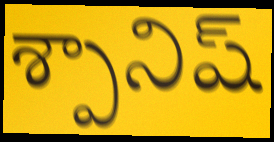
శ్పానిష్